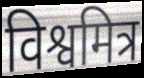
विश्वमित्र